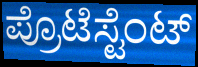
ಪ್ರೊಟೆಸ್ಟೆಂಟ್